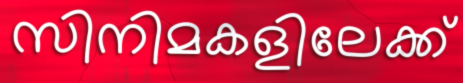
സിനിമകളിലേക്ക്